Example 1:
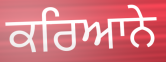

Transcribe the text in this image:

ਕਰਿਆਨੇ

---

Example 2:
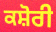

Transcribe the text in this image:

ਕਸ਼ੋਰੀ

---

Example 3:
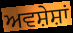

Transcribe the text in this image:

ਅਵਸ਼ੇਸ਼ਾਂ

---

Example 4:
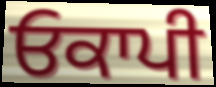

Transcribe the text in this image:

ਓਕਾਪੀ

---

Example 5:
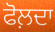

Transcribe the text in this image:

ਫੋਲ਼ਦਾ